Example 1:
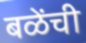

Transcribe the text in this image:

बळेंची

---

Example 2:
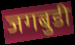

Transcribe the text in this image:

जगबुडी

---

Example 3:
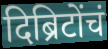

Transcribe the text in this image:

दिब्रिटोंचं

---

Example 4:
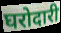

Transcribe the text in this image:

घरोदारी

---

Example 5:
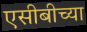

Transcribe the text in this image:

एसीबीच्या